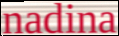
nadina